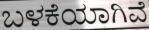
ಬಳಕೆಯಾಗಿವೆ